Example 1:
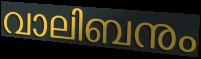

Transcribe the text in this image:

വാലിബനും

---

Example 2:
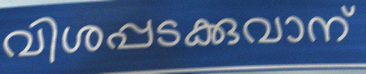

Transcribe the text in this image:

വിശപ്പടക്കുവാന്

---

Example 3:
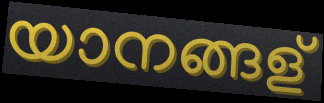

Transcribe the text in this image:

യാനങ്ങള്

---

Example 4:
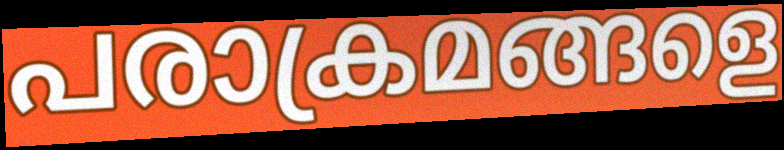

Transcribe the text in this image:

പരാക്രമങ്ങളെ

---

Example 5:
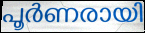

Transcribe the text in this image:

പൂർണരായി